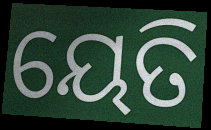
ୟେତି